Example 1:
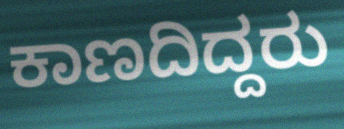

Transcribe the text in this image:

ಕಾಣದಿದ್ದರು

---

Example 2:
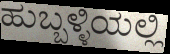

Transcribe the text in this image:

ಹುಬ್ಬಳ್ಳಿಯಲ್ಲಿ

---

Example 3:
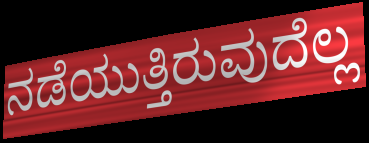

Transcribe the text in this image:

ನಡೆಯುತ್ತಿರುವುದೆಲ್ಲ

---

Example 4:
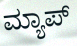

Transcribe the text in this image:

ಮ್ಯಾಪ್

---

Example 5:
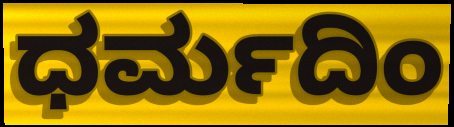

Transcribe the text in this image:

ಧರ್ಮದಿಂ